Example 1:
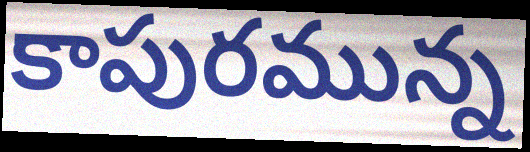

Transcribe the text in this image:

కాపురమున్న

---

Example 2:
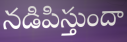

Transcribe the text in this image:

నడిపిస్తుందా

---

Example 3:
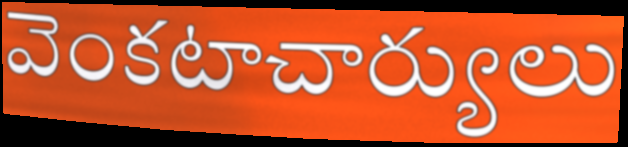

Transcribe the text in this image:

వెంకటాచార్యులు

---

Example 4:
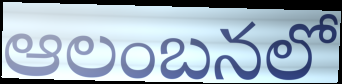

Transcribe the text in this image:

ఆలంబనలో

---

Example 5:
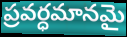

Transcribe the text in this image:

ప్రవర్ధమానమై